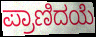
ಪ್ರಾಣಿದಯೆ